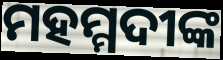
ମହମ୍ମଦୀଙ୍କ